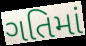
ગતિમાં